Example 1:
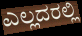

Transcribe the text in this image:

ಎಲ್ಲದರಲ್ಲಿ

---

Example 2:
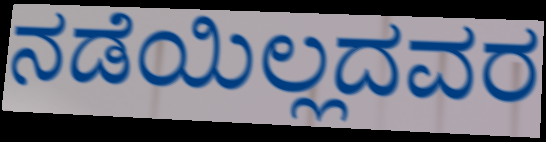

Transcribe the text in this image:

ನಡೆಯಿಲ್ಲದವರ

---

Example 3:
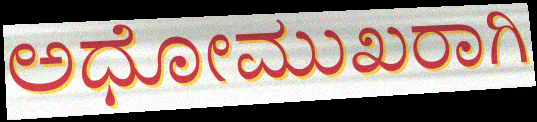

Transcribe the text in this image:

ಅಧೋಮುಖರಾಗಿ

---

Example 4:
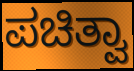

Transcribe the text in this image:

ಪಚಿತ್ವಾ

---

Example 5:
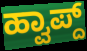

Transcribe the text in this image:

ಹ್ವಾಪ್ದ್